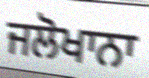
ਜਲੋਖਾਨਾ